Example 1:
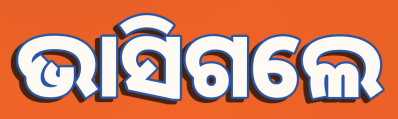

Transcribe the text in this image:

ଭାସିଗଲେ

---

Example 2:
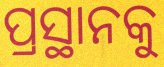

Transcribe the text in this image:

ପ୍ରସ୍ଥାନକୁ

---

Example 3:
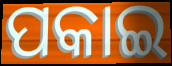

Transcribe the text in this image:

ପକାଇ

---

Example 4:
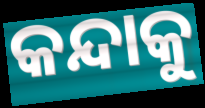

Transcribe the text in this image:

କନ୍ଦାକୁ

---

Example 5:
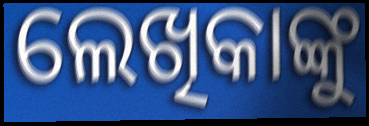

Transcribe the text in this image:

ଲେଖିକାଙ୍କୁ